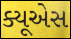
ક્યૂએસ